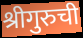
श्रीगुरुची